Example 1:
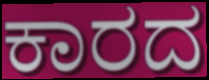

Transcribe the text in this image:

ಕಾರದ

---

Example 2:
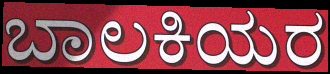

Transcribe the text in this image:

ಬಾಲಕಿಯರ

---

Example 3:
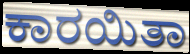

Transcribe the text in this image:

ಕಾರಯಿತಾ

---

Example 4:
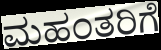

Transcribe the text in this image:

ಮಹಂತರಿಗೆ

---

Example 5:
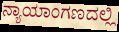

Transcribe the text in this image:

ನ್ಯಾಯಾಂಗಣದಲ್ಲಿ